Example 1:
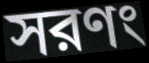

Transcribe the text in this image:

সরণং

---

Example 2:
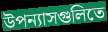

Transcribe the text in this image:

উপন্যাসগুলিতে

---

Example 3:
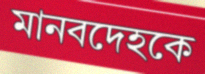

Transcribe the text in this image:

মানবদেহকে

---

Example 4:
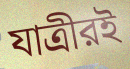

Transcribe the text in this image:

যাত্রীরই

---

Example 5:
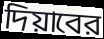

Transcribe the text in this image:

দিয়াবের